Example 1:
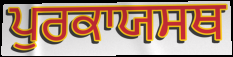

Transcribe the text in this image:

ਪੁਰਕਾਯਸਥ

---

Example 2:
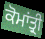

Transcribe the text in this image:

ਕੋਮਾਂਤ੍ਰੀ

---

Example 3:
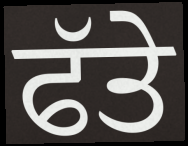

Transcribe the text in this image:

ਫੱਤੇ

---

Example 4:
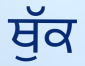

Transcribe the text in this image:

ਥੁੱਕ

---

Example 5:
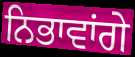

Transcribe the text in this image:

ਨਿਭਾਵਾਂਗੇ